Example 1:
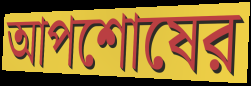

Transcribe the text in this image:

আপশোষের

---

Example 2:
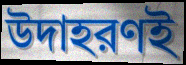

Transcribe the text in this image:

উদাহরণই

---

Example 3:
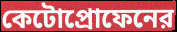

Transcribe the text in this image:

কেটোপ্রোফেনের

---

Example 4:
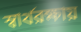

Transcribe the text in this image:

স্বার্থরক্ষায়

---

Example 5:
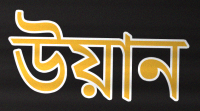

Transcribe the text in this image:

উয়ান